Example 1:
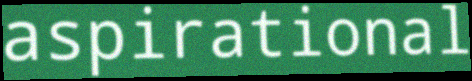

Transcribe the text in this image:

aspirational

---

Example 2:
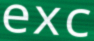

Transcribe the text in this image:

exc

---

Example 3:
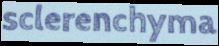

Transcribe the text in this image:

sclerenchyma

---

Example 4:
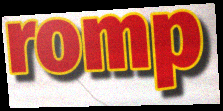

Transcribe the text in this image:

romp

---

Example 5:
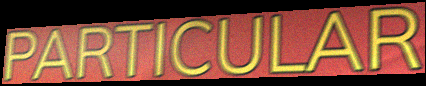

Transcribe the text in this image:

PARTICULAR